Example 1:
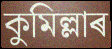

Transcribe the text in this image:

কুমিল্লাৰ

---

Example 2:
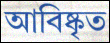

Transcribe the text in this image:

আবিষ্কৃত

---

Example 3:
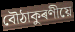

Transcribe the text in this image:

বৌঠাকুৰণীয়ে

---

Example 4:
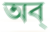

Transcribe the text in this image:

অব্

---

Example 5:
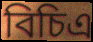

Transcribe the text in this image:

বিচিএ